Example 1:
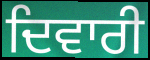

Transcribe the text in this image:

ਦਿਵਾਰੀ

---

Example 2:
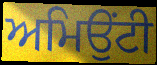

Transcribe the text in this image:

ਅਮਿਉਂਟੀ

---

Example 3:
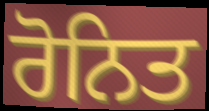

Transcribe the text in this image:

ਰੋਨਿਤ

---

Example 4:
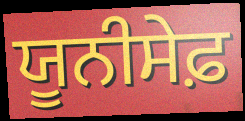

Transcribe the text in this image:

ਯੂਨੀਸੇਫ਼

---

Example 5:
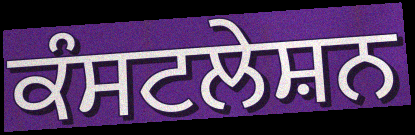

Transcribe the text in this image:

ਕੰਸਟਲੇਸ਼ਨ